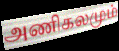
அணிகலமும்